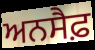
ਅਨਸੈਫ਼